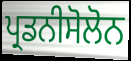
ਪ੍ਰਡਨੀਸੋਲੋਨ